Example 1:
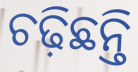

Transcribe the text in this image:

ଚଢ଼ିଛନ୍ତି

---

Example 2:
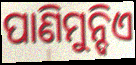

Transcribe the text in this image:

ପାଣିମୁନ୍ଦିଏ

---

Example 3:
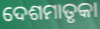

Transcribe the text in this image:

ଦେଶମାତୃକା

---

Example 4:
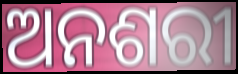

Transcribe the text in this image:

ଅନଶରୀ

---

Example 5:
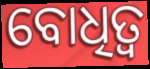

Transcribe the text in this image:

ବୋଧିତ୍ୱ